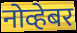
नोव्हेबर